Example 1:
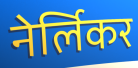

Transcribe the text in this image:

नेर्लिकर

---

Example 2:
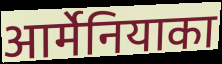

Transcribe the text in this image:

आर्मेनियाका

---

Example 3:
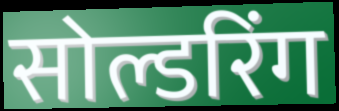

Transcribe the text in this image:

सोल्डरिंग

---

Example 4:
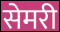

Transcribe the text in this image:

सेमरी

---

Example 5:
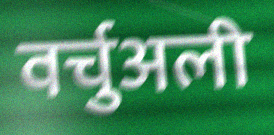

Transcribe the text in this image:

वर्चुअली